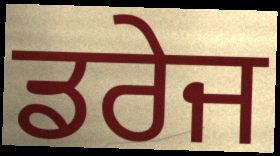
ਡਰੇਜ